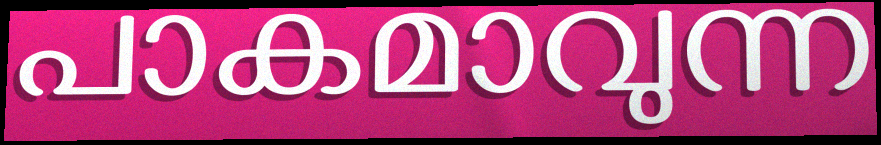
പാകമാവുന്ന